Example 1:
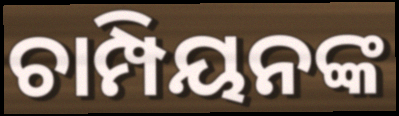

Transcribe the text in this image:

ଚାମ୍ପିୟନଙ୍କ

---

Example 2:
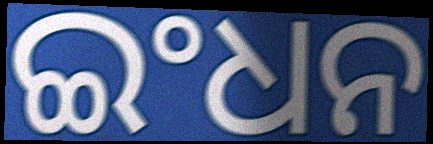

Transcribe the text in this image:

ଇଂଧନ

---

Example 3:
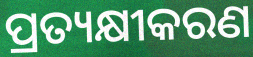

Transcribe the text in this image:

ପ୍ରତ୍ୟକ୍ଷୀକରଣ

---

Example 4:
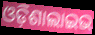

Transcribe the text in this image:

ଓଡ଼ିଶାଲାଇଭ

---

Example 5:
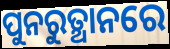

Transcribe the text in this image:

ପୁନରୁତ୍ଥାନରେ